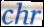
chr